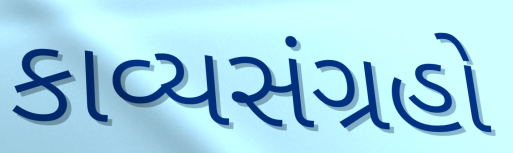
કાવ્યસંગ્રહો